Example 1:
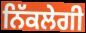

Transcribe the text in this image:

ਨਿੱਕਲੇਗੀ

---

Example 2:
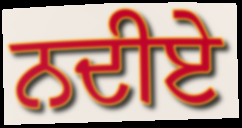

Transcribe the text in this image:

ਨਦੀਏ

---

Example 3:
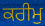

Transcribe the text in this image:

ਕਰੀਮੁ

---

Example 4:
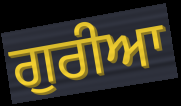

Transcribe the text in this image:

ਗੁਰੀਆ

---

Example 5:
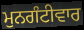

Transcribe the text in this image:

ਮੁਨਗੰਟੀਵਾਰ